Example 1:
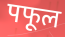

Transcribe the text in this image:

पफूल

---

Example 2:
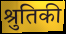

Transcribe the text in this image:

श्रुतिकी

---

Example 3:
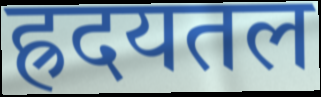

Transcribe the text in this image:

ह्रदयतल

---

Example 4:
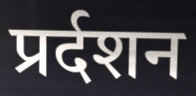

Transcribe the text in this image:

प्रर्दशन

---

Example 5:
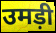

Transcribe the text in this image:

उमड़ी